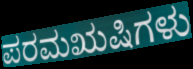
ಪರಮಋಷಿಗಳು